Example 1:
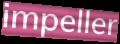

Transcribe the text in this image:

impeller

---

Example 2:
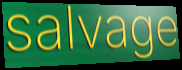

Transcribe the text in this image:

salvage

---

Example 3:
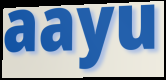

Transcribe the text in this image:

aayu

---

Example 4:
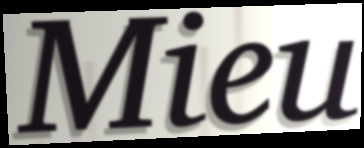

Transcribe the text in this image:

Mieu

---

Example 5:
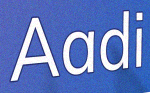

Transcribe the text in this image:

Aadi